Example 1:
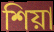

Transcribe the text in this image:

শিয়া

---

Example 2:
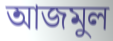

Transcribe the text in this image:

আজমুল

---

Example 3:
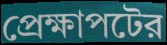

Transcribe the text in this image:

প্রেক্ষাপটের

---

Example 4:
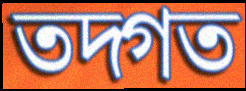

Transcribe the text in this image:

তদ্গত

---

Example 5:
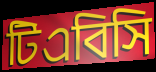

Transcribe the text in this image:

টিএবিসি